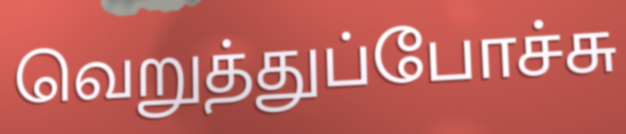
வெறுத்துப்போச்சு